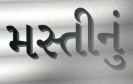
મસ્તીનું